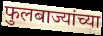
फुलबाज्यांच्या